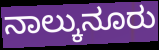
ನಾಲ್ಕುನೂರು